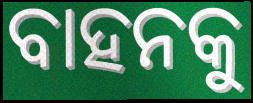
ବାହନକୁ